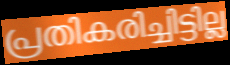
പ്രതികരിച്ചിട്ടില്ല